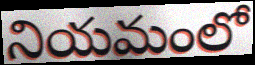
నియమంలో